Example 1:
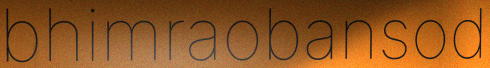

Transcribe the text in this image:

bhimraobansod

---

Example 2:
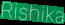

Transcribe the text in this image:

Rishika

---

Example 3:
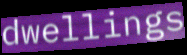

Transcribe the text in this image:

dwellings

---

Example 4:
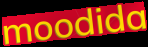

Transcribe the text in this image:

moodida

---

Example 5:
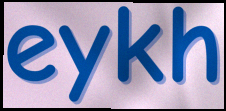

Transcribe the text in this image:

eykh